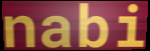
nabi